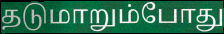
தடுமாறும்போது